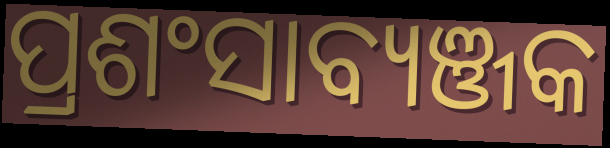
ପ୍ରଶଂସାବ୍ୟଞ୍ଜକ